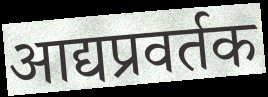
आद्यप्रवर्तक